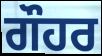
ਗੌਹਰ